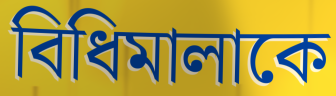
বিধিমালাকে